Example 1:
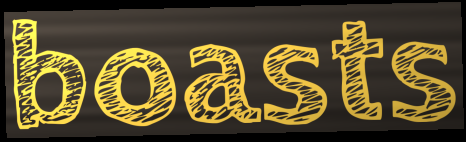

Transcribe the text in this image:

boasts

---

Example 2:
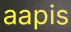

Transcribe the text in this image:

aapis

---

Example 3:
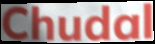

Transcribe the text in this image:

Chudal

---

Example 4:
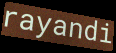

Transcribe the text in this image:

rayandi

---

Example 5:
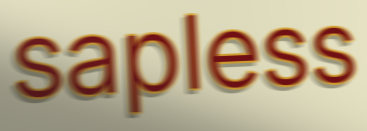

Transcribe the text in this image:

sapless